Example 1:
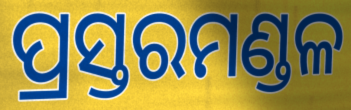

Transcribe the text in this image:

ପ୍ରସ୍ତରମଣ୍ଡଳ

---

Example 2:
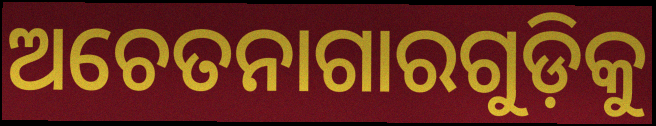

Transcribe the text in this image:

ଅଚେତନାଗାରଗୁଡ଼ିକୁ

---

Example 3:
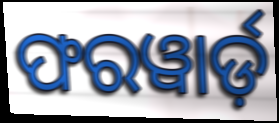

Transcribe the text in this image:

ଫରୱାର୍ଡ଼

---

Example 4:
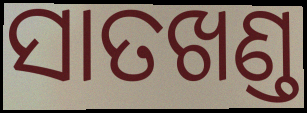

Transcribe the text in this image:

ସାତଖଣ୍ଡ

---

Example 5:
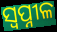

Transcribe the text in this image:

ସ୍ୱପ୍ନୀଳ